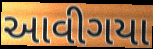
આવીગયા